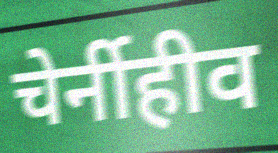
चेर्नीहीव